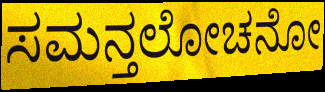
ಸಮನ್ತಲೋಚನೋ